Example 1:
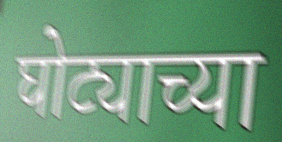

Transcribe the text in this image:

घोट्याच्या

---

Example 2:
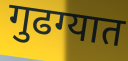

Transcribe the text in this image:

गुढग्यात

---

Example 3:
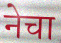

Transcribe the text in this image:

नेचा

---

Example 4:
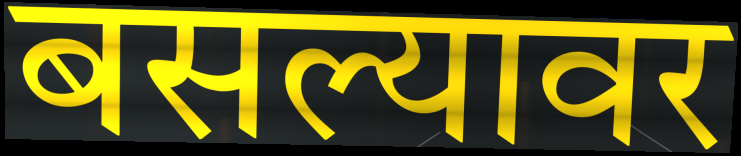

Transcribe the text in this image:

बसल्यावर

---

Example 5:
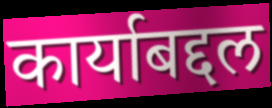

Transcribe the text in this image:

कार्याबद्दल